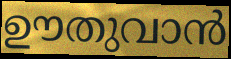
ഊതുവാൻ